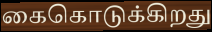
கைகொடுக்கிறது